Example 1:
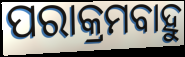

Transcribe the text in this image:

ପରାକ୍ରମବାହୁ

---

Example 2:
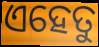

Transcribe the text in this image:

ଏହେତୁ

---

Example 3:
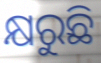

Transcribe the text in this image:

କ୍ଷରୁଛି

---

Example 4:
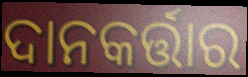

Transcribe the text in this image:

ଦାନକର୍ତ୍ତାର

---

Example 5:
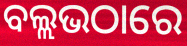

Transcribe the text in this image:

ବଲ୍ଲଭଠାରେ